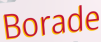
Borade